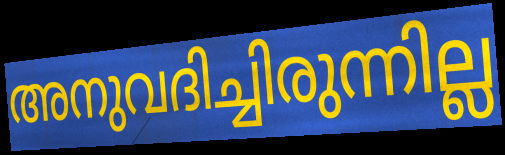
അനുവദിച്ചിരുന്നില്ല